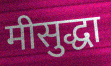
मीसुद्धा